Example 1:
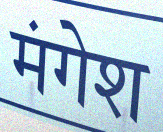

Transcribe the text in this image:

मंगेश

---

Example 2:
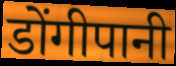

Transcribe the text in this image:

डोंगीपानी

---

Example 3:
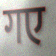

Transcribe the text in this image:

गए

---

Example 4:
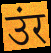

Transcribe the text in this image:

उंर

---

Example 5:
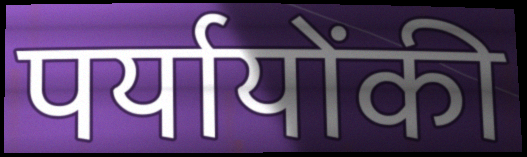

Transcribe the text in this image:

पर्यायोंकी